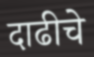
दाढीचे